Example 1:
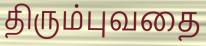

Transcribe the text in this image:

திரும்புவதை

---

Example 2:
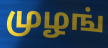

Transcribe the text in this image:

முழங்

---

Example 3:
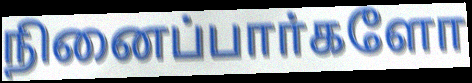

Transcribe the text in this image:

நினைப்பார்களோ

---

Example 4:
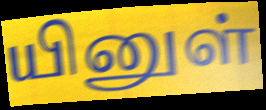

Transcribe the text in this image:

யினுள்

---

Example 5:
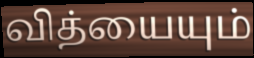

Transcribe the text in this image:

வித்யையும்